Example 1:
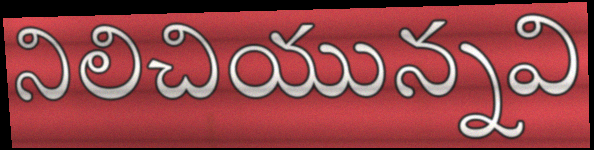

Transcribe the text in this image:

నిలిచియున్నవి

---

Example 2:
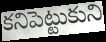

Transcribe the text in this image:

కనిపెట్టుకుని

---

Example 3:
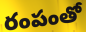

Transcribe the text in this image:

రంపంతో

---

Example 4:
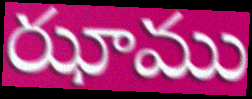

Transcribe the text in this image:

ఝాము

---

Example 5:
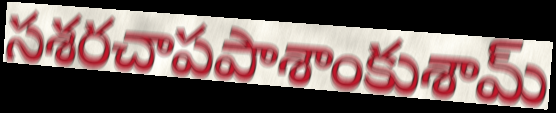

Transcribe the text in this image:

సశరచాపపాశాంకుశామ్